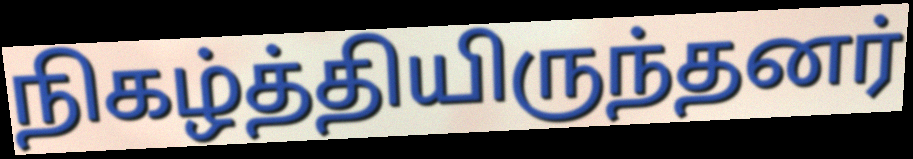
நிகழ்த்தியிருந்தனர்